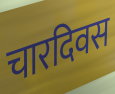
चारदिवस